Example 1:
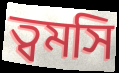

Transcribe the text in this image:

ত্বমসি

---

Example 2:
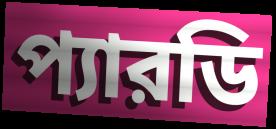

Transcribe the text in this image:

প্যারডি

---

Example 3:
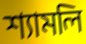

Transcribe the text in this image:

শ্যামলি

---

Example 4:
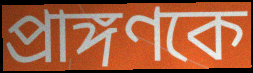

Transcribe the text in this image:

প্রাঙ্গণকে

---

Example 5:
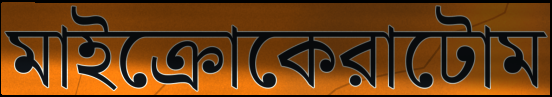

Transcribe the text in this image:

মাইক্রোকেরাটোম